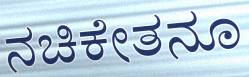
ನಚಿಕೇತನೂ